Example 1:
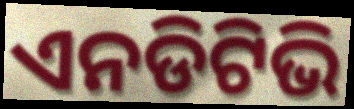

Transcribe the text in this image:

ଏନଡିଟିଭି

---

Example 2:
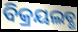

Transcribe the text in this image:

ବିକ୍ରୟଲବ୍ଧ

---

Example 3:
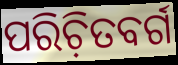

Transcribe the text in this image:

ପରିଚ଼ିତବର୍ଗ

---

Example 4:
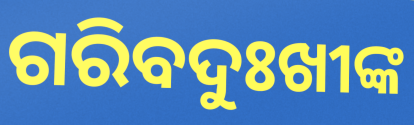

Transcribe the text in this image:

ଗରିବଦୁଃଖୀଙ୍କ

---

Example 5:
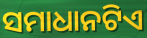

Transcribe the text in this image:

ସମାଧାନଟିଏ